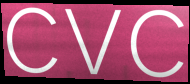
cvc